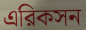
এরিকসন